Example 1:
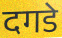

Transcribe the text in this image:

दगडे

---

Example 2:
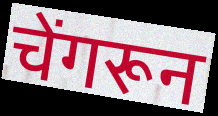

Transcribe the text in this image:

चेंगरून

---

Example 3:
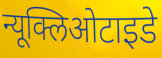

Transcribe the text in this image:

न्यूक्लिओटाइडे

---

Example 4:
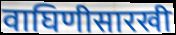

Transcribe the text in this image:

वाघिणीसारखी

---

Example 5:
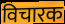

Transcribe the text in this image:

विचारक